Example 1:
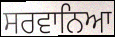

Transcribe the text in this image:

ਸਰਵਾਨਿਆ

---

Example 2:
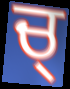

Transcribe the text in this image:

ਚ੍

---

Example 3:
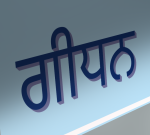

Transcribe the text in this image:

ਗੀਧਨ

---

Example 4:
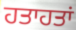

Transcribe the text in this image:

ਹਤਾਹਤਾਂ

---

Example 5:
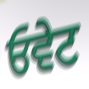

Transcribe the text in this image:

ਓਵੇਟ